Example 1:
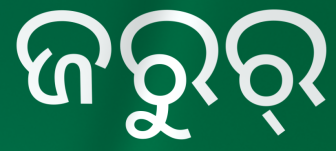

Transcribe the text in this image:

ଜରୁର୍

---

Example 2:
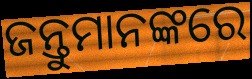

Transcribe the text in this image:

ଜନ୍ତୁମାନଙ୍କରେ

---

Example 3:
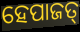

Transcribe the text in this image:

ହେପାଜତ୍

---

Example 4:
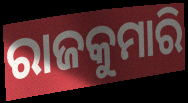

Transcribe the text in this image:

ରାଜକୁମାରି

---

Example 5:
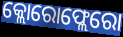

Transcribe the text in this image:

କ୍ଲୋରୋଫ୍ଲେରୋ